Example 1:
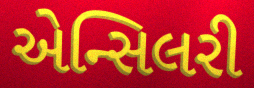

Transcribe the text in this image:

એન્સિલરી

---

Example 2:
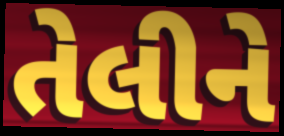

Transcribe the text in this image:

તેલીને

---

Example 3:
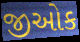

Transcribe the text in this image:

જીઓક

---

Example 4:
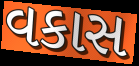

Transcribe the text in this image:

વકાસ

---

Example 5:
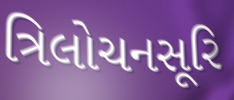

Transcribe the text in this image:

ત્રિલોચનસૂરિ